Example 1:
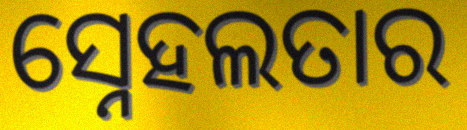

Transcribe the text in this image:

ସ୍ନେହଲତାର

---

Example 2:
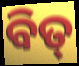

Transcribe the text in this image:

ବିତ୍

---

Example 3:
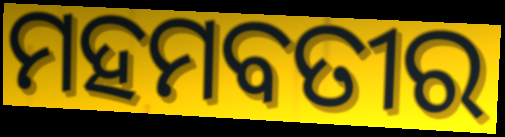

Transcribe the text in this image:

ମହମବତୀର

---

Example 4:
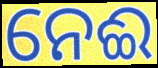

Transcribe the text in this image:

ନେଈ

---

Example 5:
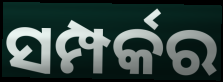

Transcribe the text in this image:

ସମ୍ପର୍କର